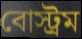
বোস্ট্রম